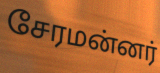
சேரமன்னர்